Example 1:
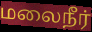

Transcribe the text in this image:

மலைநீர்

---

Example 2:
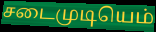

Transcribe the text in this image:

சடைமுடியெம்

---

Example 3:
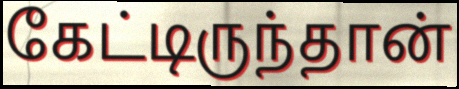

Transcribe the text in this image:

கேட்டிருந்தான்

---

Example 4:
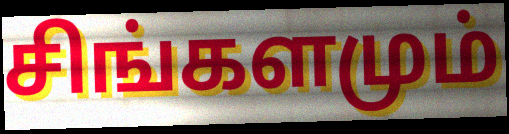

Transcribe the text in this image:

சிங்களமும்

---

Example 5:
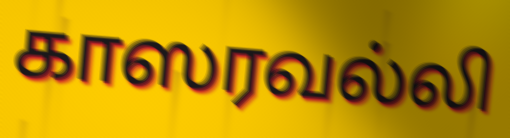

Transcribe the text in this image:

காஸரவல்லி